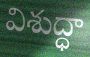
విశుద్ధా